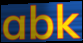
abk